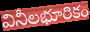
వినీలభూరికం